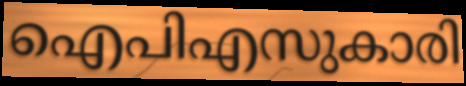
ഐപിഎസുകാരി